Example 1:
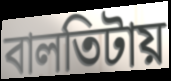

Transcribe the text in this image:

বালতিটায়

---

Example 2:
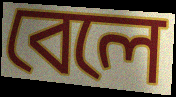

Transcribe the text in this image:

বেলে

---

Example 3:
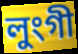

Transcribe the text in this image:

লুংগী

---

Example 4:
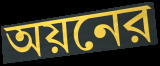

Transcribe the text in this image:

অয়নের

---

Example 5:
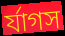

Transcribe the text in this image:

র্যাগস